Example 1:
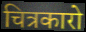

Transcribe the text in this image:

चित्रकारो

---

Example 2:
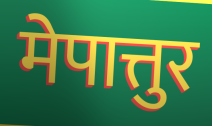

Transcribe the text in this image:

मेपात्तुर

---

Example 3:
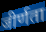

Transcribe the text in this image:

जीर्णता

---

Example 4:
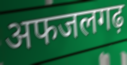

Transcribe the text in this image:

अफजलगढ़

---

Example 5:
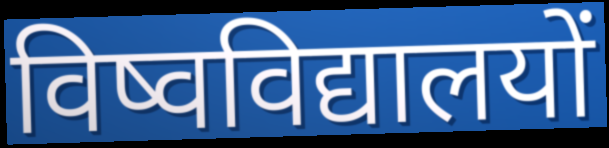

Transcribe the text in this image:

विष्वविद्यालयों